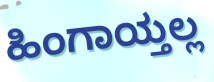
ಹಿಂಗಾಯ್ತಲ್ಲ